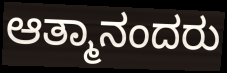
ಆತ್ಮಾನಂದರು